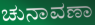
ಚುನಾವಣಾ